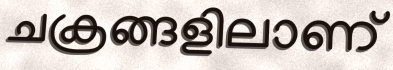
ചക്രങ്ങളിലാണ്